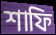
শাফি